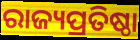
ରାଜ୍ୟପ୍ରତିଷ୍ଠା